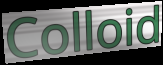
Colloid